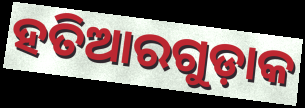
ହତିଆରଗୁଡ଼ାକ